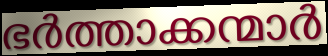
ഭർത്താക്കന്മാർ